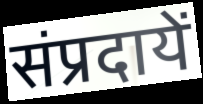
संप्रदायें